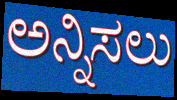
ಅನ್ನಿಸಲು